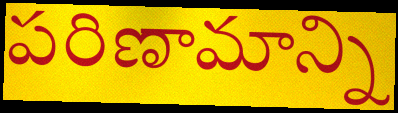
పరిణామాన్ని